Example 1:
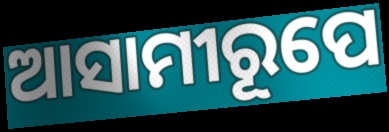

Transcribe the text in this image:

ଆସାମୀରୂପେ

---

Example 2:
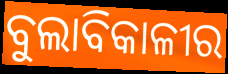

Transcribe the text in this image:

ବୁଲାବିକାଳୀର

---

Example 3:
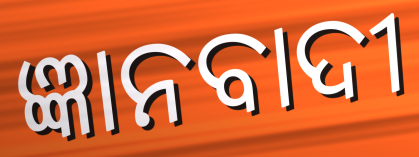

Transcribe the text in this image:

ଜ୍ଞାନବାଦୀ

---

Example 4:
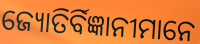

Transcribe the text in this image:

ଜ୍ୟୋତିର୍ବିଜ୍ଞାନୀମାନେ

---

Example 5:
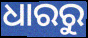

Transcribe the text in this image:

ଧାରରୁ